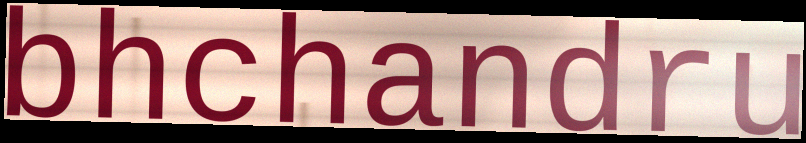
bhchandru